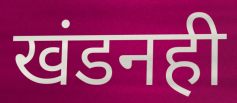
खंडनही